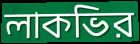
লাকভির